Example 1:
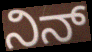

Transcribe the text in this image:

ನಿನ್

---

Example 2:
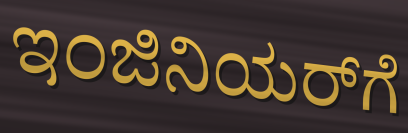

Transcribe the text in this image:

ಇಂಜಿನಿಯರ್‌ಗೆ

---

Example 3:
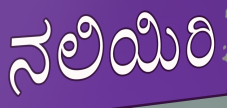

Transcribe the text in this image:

ನಲಿಯಿರಿ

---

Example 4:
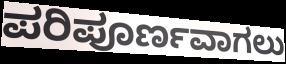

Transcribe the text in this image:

ಪರಿಪೂರ್ಣವಾಗಲು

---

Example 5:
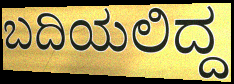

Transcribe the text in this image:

ಬದಿಯಲಿದ್ದ